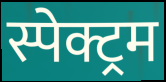
स्पेक्ट्रम